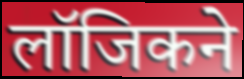
लॉजिकने